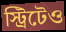
স্ট্রিটেও